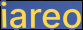
iareo